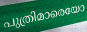
പുത്രിമാരെയോ